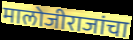
मालोजीराजांचा